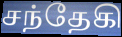
சந்தேகி